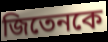
জিতেনকে